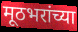
मूठभरांच्या